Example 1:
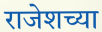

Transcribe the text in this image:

राजेशच्या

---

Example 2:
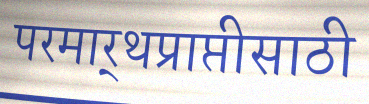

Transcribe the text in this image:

परमार्थप्राप्तीसाठी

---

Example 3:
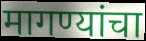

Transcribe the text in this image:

मागण्यांचा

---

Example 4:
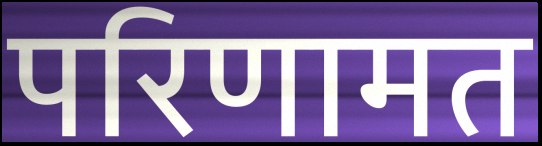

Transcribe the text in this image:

परिणामत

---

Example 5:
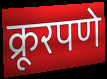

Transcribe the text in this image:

क्रूरपणे